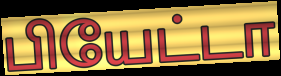
பியேட்டா